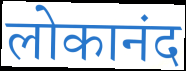
लोकानंद